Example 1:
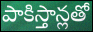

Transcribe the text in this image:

పాకిస్తాన్లతో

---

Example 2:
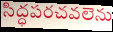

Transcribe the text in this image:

సిద్ధపరచవలెను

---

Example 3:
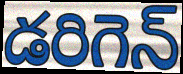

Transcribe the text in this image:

డరిగెన్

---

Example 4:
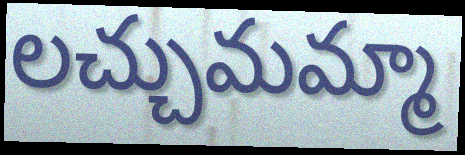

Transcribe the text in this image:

లచ్చుమమ్మా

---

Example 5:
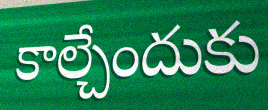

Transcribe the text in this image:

కాల్చేందుకు